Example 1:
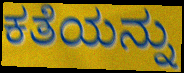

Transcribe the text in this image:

ಕತೆಯನ್ನು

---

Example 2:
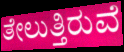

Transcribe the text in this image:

ತೇಲುತ್ತಿರುವೆ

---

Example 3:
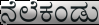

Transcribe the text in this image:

ನೆಲೆಕಂಡು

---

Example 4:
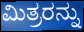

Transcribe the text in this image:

ಮಿತ್ರರನ್ನು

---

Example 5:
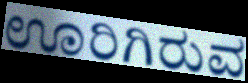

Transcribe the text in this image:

ಊರಿಗಿರುವ